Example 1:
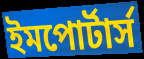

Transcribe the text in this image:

ইমপোর্টার্স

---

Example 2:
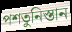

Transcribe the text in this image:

পশতুনিস্তান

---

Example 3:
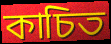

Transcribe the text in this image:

কাচিত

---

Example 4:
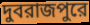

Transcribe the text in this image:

দুবরাজপুরে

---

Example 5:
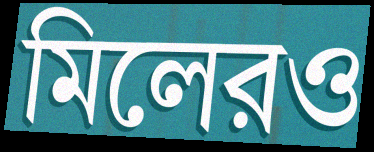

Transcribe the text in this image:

মিলেরও